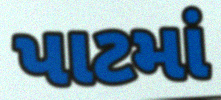
પાટમાં